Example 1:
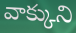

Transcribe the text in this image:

వాక్కుని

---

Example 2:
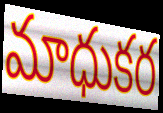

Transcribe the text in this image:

మాధుకర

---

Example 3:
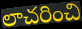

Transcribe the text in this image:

లాచరించి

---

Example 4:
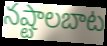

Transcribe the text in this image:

నష్టాలబాట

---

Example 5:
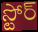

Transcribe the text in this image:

స్టోర్